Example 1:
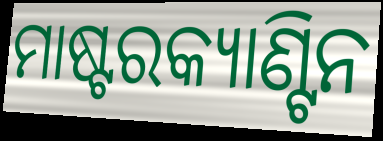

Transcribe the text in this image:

ମାଷ୍ଟରକ୍ୟାଣ୍ଟିନ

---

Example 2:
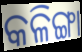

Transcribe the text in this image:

କଳିଙ୍ଗା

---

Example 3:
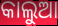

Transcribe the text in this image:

କାଲୁଆ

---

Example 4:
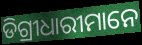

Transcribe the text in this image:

ଡିଗ୍ରୀଧାରୀମାନେ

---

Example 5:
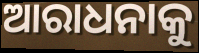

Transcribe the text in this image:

ଆରାଧନାକୁ